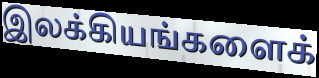
இலக்கியங்களைக்